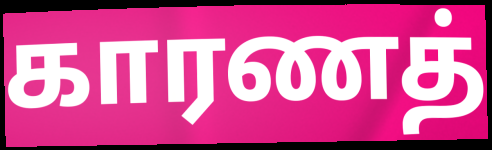
காரணத்